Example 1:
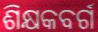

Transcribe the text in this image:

ଶିକ୍ଷକବର୍ଗ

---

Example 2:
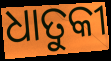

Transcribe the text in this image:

ଧାତୁକୀ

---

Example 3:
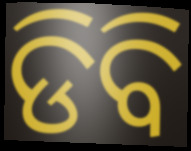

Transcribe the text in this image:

ଡିବି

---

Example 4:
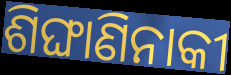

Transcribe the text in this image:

ଶିଙ୍ଘାଣିନାକୀ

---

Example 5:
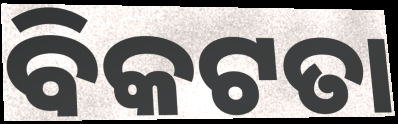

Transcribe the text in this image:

ବିକଟତା